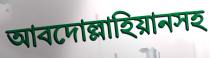
আবদোল্লাহিয়ানসহ